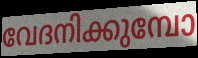
വേദനിക്കുമ്പോ